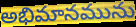
అభిమానమును